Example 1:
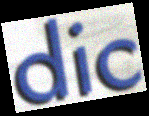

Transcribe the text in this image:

dic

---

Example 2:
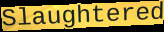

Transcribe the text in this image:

Slaughtered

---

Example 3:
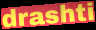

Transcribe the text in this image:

drashti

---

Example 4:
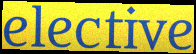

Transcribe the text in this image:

elective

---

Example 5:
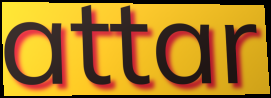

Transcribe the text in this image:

attar